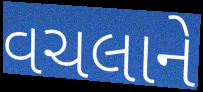
વચલાને